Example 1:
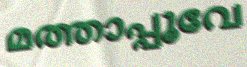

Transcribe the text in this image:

മത്താപ്പൂവേ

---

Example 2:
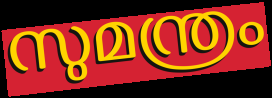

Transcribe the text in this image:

സുമന്ത്രം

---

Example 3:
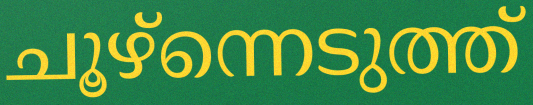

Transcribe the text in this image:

ചൂഴ്ന്നെടുത്ത്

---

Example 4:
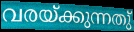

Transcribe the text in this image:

വരയ്ക്കുന്നതു്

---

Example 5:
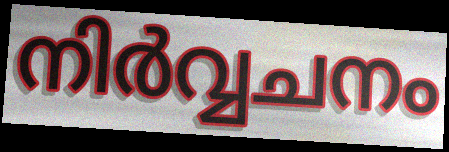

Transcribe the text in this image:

നിർവ്വചനം